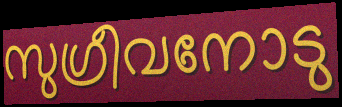
സുഗ്രീവനോടു